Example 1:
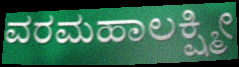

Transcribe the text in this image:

ವರಮಹಾಲಕ್ಷ್ಮೀ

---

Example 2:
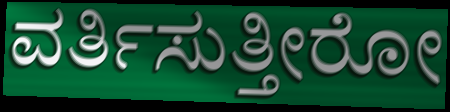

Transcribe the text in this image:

ವರ್ತಿಸುತ್ತೀರೋ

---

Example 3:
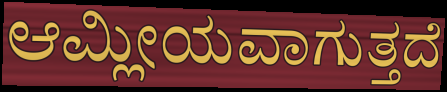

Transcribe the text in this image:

ಆಮ್ಲೀಯವಾಗುತ್ತದೆ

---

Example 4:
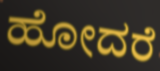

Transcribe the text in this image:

ಹೋದರೆ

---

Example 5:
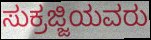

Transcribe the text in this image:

ಸುಕ್ರಜ್ಜಿಯವರು